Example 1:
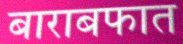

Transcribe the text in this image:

बाराबफात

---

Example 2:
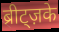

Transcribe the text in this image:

ब्रीट्ज़के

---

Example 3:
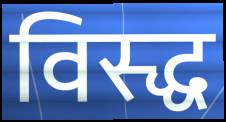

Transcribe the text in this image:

विस्द्ध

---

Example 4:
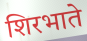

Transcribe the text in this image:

शिरभाते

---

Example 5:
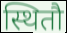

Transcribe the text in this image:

स्थितौ